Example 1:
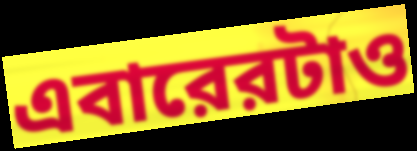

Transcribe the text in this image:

এবারেরটাও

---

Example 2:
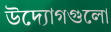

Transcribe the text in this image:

উদ্যোগগুলো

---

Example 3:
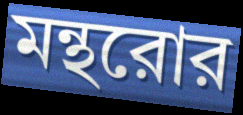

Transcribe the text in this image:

মন্থরোর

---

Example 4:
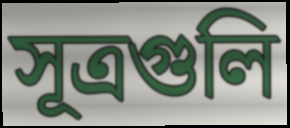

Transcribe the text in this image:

সূত্রগুলি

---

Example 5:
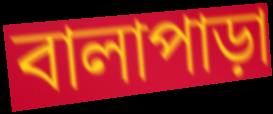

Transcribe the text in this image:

বালাপাড়া